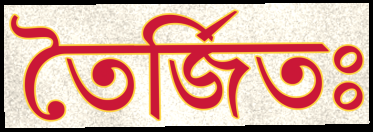
তৈর্জিতঃ